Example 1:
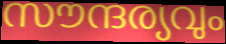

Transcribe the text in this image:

സൗന്ദര്യവും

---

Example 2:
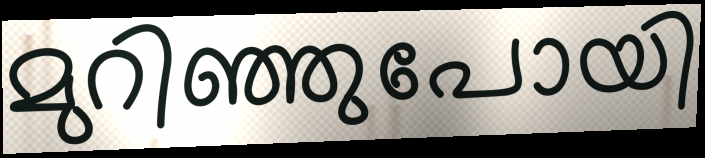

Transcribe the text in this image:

മുറിഞ്ഞുപോയി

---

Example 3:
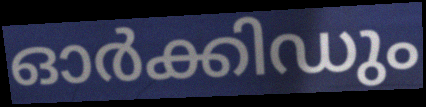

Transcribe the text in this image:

ഓർക്കിഡും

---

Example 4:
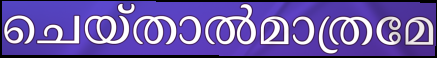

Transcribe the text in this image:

ചെയ്താൽമാത്രമേ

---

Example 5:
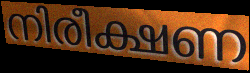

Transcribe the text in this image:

നിരീക്ഷണ